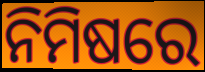
ନିମିଷରେ